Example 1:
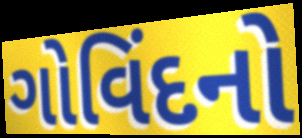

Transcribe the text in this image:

ગોવિંદનો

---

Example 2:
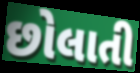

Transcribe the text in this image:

છોલાતી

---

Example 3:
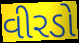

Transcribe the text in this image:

વીરડો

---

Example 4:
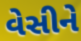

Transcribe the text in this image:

વેસીને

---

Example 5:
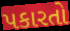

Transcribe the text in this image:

પકારતો